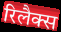
रिलैक्‍स